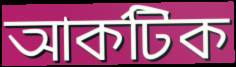
আর্কটিক